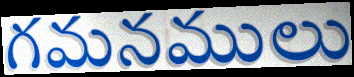
గమనములు